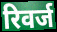
रिवर्ज